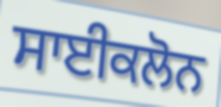
ਸਾਈਕਲੋਨ